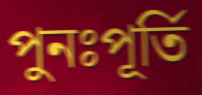
পুনঃপূৰ্তি